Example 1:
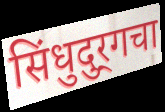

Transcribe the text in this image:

सिंधुदुर्गचा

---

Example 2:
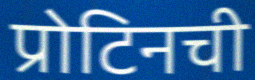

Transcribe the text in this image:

प्रोटिनची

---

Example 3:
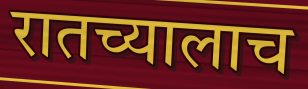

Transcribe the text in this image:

रातच्यालाच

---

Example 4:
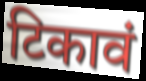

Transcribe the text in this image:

टिकावं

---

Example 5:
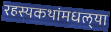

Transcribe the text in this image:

रहस्यकथांमधल्या